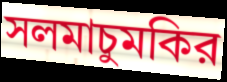
সলমাচুমকির